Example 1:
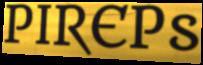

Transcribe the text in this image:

PIREPs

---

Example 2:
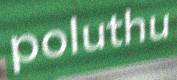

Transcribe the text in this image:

poluthu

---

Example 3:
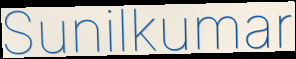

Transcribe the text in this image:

Sunilkumar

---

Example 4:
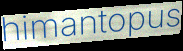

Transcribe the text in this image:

himantopus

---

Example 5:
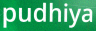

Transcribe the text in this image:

pudhiya